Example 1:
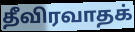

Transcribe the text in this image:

தீவிரவாதக்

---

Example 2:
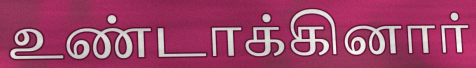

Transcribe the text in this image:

உண்டாக்கினார்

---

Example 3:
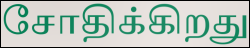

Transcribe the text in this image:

சோதிக்கிறது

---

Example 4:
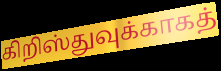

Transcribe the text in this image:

கிறிஸ்துவுக்காகத்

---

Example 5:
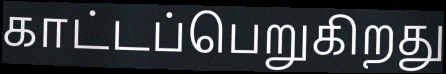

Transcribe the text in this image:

காட்டப்பெறுகிறது